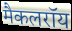
मैकलरॉय